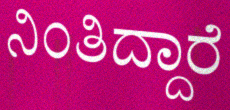
ನಿಂತಿದ್ದಾರೆ